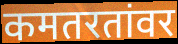
कमतरतांवर